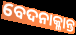
ବେଦନାକ୍ଳାନ୍ତ